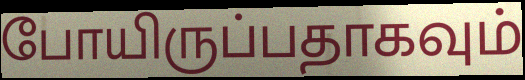
போயிருப்பதாகவும்